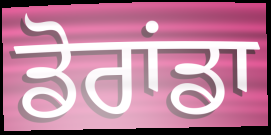
ਡੋਰਾਂਡਾ